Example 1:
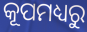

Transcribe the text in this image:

କୂପମଧ୍ୟରୁ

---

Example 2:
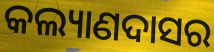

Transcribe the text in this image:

କଲ୍ୟାଣଦାସର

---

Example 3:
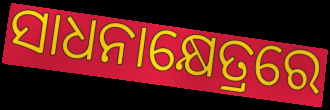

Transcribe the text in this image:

ସାଧନାକ୍ଷେତ୍ରରେ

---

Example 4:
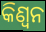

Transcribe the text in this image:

କିଣ୍ୱନ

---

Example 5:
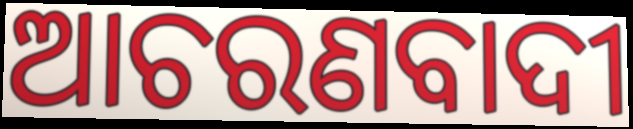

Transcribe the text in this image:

ଆଚରଣବାଦୀ